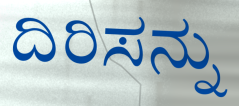
ದಿರಿಸನ್ನು